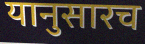
यानुसारच